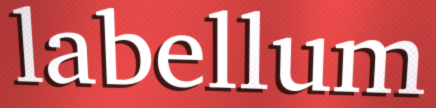
labellum